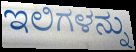
ಇಲಿಗಳನ್ನು